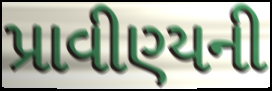
પ્રાવીણ્યની